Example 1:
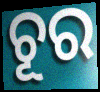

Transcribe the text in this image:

ଚୂର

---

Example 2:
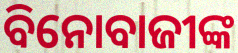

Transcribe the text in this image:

ବିନୋବାଜୀଙ୍କ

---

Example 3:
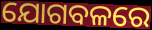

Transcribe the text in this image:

ଯୋଗବଳରେ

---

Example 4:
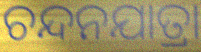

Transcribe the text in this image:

ଚନ୍ଦନଯାତ୍ରା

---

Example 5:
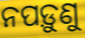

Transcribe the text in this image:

ନପଡ଼ୁଣୁ